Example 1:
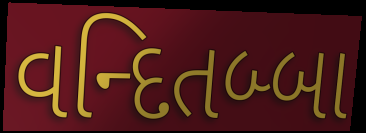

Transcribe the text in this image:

વન્દિતબ્બા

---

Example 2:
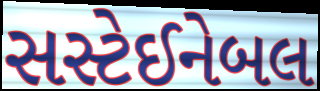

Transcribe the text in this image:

સસ્ટેઈનેબલ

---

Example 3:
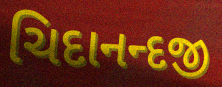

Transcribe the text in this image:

ચિદાનન્દજી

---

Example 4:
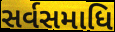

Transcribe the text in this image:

સર્વસમાધિ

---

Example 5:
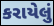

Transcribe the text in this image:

કરાયેલું